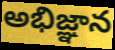
అభిజ్ఞాన